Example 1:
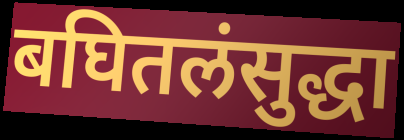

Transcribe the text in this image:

बघितलंसुद्धा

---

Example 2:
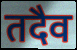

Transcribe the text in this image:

तदैव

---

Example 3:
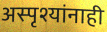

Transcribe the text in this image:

अस्पृश्यांनाही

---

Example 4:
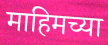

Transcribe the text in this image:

माहिमच्या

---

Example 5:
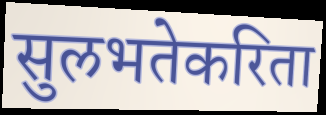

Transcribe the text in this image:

सुलभतेकरिता